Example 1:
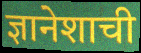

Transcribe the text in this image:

ज्ञानेशाची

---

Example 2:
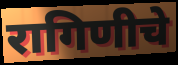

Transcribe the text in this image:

रागिणीचे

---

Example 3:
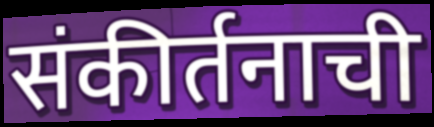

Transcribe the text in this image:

संकीर्तनाची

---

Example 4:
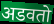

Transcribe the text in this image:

अडवतो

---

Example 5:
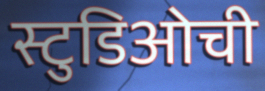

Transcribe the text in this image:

स्टुडिओची